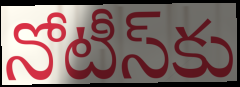
నోటీస్‌కు